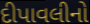
દીપાવલીનો